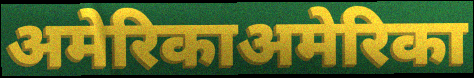
अमेरिकाअमेरिका